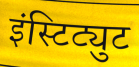
इंस्टिट्युट